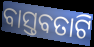
ବାସ୍ତବତାଟି